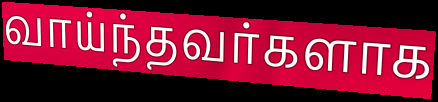
வாய்ந்தவர்களாக